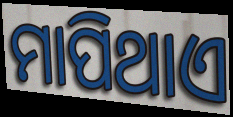
ମାପିଥାଏ